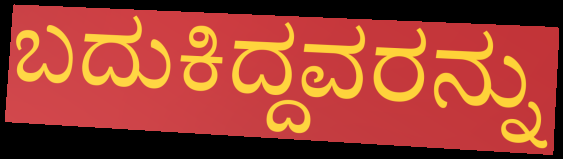
ಬದುಕಿದ್ದವರನ್ನು